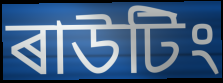
ৰাউটিং